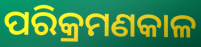
ପରିକ୍ରମଣକାଳ